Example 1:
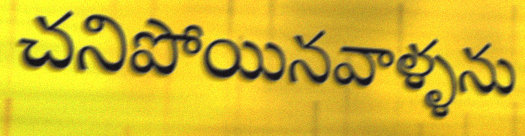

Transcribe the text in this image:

చనిపోయినవాళ్ళను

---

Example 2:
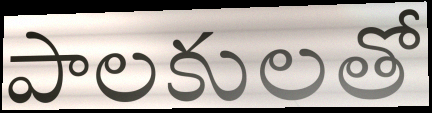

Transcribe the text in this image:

పాలకులతో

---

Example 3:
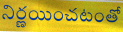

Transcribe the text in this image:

నిర్ణయించటంతో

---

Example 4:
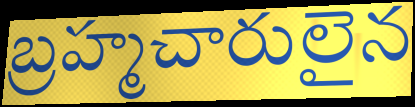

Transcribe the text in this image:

బ్రహ్మచారులైన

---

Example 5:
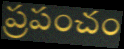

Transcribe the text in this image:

ప్రపంచం